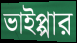
ভাইপ্পার